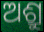
ଅଶ୍ରୁ